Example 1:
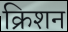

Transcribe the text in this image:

क्रिशन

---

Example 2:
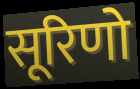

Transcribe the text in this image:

सूरिणो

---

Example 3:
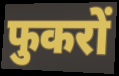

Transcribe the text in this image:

फुकरों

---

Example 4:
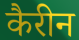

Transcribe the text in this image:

कैरीन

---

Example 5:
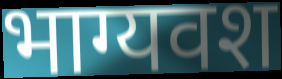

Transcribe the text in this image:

भाग्यवश